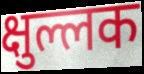
क्षुल्लक